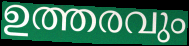
ഉത്തരവും